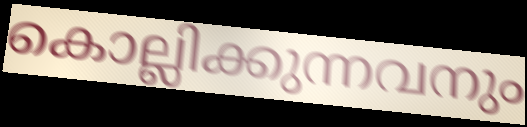
കൊല്ലിക്കുന്നവനും